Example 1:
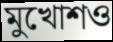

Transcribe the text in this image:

মুখোশও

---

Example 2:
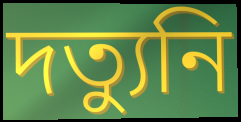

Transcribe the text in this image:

দত্যুনি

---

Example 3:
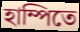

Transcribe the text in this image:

হাম্পিতে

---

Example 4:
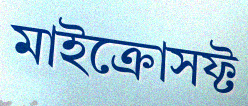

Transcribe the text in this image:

মাইক্রোসফ্ট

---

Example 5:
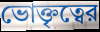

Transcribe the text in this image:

ভোক্তৃত্বের